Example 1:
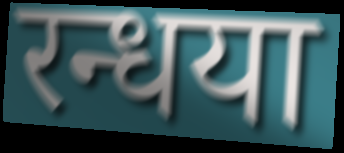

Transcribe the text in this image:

रन्धया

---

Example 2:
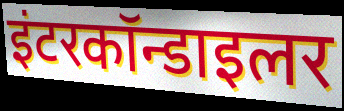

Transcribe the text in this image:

इंटरकॉन्डाइलर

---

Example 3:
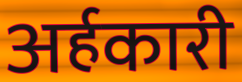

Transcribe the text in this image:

अर्हकारी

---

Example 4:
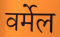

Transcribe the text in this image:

वर्मेल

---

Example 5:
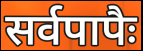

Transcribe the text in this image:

सर्वपापैः